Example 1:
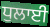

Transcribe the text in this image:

ਧੁਲਾਈ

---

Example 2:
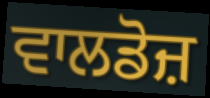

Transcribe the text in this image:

ਵਾਲਡੋਜ਼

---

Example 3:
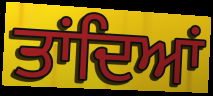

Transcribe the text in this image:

ਤਾਂਦਿਆਂ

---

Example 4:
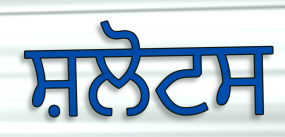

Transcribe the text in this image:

ਸ਼ਲੋਟਸ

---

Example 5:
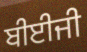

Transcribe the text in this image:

ਬੀਈਜੀ